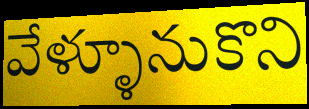
వేళ్ళూనుకొని